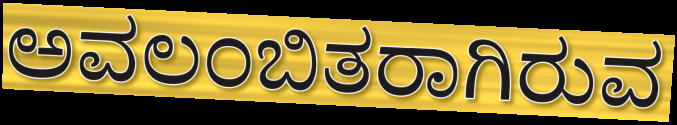
ಅವಲಂಬಿತರಾಗಿರುವ